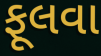
ફૂલવા